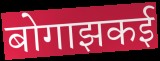
बोगाझकई